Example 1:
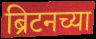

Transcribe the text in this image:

ब्रिटनच्या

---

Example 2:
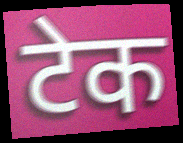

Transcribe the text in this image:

टेक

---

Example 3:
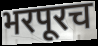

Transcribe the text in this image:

भरपूरच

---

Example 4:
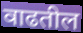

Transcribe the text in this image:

वाढतील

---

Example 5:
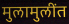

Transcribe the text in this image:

मुलामुलींत